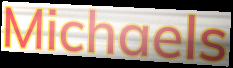
Michaels